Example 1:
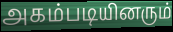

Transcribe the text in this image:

அகம்படியினரும்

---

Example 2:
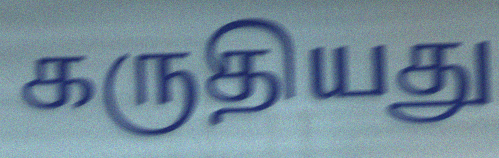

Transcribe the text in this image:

கருதியது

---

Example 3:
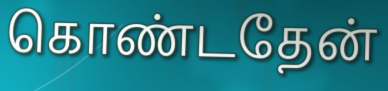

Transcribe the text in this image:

கொண்டதேன்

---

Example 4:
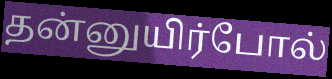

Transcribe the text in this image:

தன்னுயிர்போல்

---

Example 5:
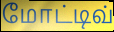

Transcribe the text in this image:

மோட்டிவ்